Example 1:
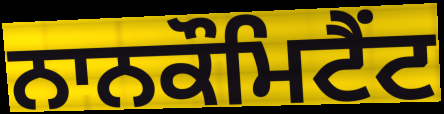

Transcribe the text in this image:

ਨਾਨਕੌਮਿਟੈਂਟ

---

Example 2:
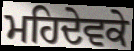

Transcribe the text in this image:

ਮਹਿਦੇਵਕੇ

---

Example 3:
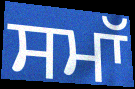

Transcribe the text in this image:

ਸਮਾੱ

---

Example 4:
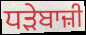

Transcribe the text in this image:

ਧੜੇਬਾਜ਼ੀ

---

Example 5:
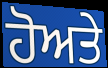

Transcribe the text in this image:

ਹੋਅਤੇ